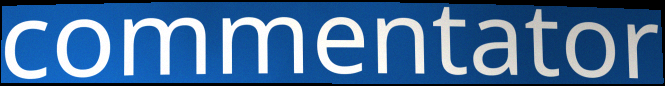
commentator